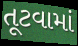
તૂટવામાં